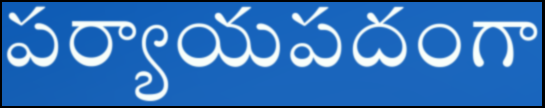
పర్యాయపదంగా